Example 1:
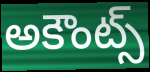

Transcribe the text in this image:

అకౌంట్స్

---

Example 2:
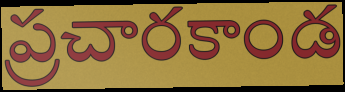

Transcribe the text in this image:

ప్రచారకాండ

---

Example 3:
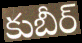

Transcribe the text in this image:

కుబీర్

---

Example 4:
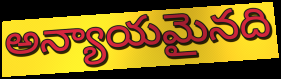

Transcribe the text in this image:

అన్యాయమైనది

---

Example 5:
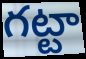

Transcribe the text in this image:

గట్టా